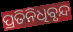
ପ୍ରତିନିଧିବୃନ୍ଦ